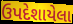
ઉપદેશાયેલા